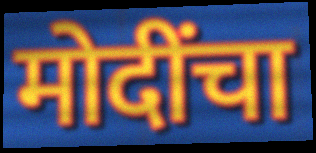
मोदींचा